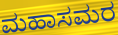
ಮಹಾಸಮರ